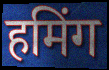
हमिंग